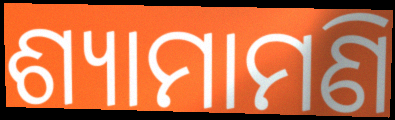
ଶ୍ୟାମାମଣି